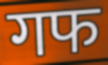
गफ